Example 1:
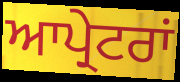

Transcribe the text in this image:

ਆਪ੍ਰੇਟਰਾਂ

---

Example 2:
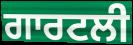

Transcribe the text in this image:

ਗਾਰਟਲੀ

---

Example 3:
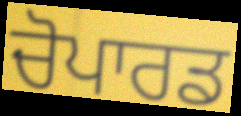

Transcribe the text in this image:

ਚੋਪਾਰਡ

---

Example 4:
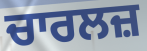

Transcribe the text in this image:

ਚਾਰਲਜ਼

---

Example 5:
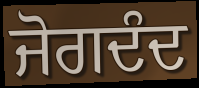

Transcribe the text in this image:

ਜੋਗਦੰਦ